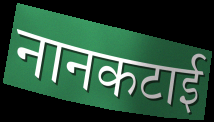
नानकटाई